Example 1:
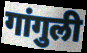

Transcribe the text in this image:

गांगुली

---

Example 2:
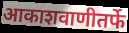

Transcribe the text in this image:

आकाशवाणीतर्फे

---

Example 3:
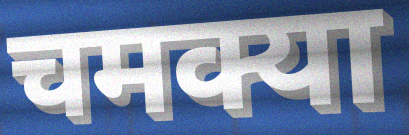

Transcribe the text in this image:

चमक्या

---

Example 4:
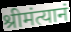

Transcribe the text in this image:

श्रीमंत्यानं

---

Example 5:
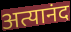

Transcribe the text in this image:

अत्यानंद